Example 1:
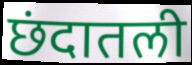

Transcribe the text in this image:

छंदातली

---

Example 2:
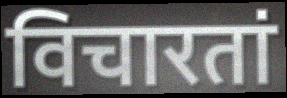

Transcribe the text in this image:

विचारतां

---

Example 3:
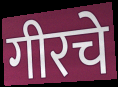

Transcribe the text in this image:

गीरचे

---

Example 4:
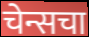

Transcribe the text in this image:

चेन्सचा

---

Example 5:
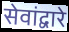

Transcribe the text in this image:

सेवांद्वारे